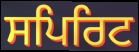
ਸਪਿਰਿਟ